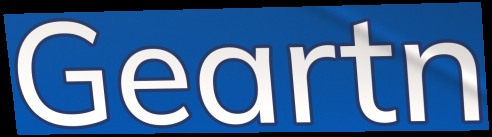
Geartn